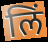
लिं